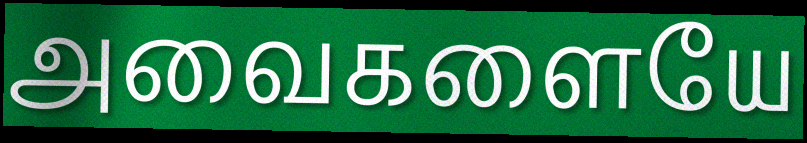
அவைகளையே